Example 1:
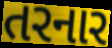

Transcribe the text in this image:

તરનાર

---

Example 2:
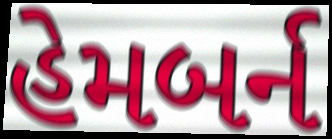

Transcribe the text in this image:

હેમબર્ન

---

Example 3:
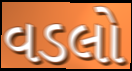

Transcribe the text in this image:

વડલો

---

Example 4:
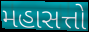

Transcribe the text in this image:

મહાસત્તો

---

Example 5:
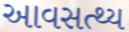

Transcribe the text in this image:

આવસત્થ્ય